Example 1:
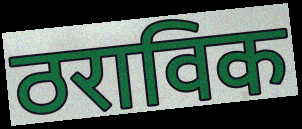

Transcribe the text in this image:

ठराविक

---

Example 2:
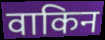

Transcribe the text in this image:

वाकिन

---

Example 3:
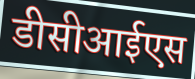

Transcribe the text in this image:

डीसीआईएस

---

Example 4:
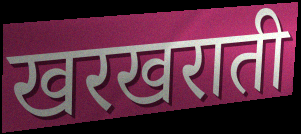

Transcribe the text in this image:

खरखराती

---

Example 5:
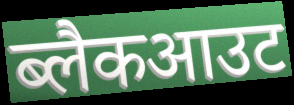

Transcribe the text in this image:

ब्लैकआउट